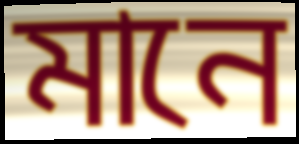
মানে